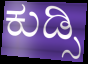
ಕುಡ್ಸಿ